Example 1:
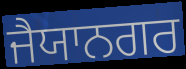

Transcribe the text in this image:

ਜੈਯਾਨਗਰ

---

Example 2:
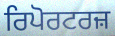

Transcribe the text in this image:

ਰਿਪੋਰਟਰਜ਼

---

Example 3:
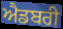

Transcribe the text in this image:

ਐਡਬਰੀ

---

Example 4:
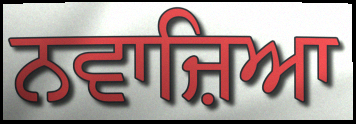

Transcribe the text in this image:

ਨਵਾਜ਼ਿਆ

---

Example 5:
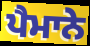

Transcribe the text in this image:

ਪੈਮਾਨੇ